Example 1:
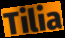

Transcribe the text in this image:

Tilia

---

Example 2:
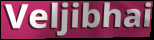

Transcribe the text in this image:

Veljibhai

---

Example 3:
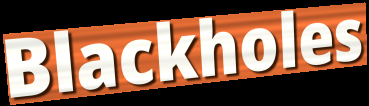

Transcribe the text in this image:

Blackholes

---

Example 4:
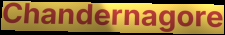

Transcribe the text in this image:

Chandernagore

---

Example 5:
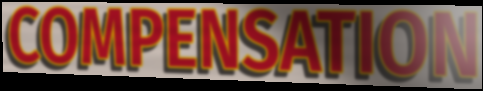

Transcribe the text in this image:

COMPENSATION